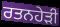
ਰਤਨਹੇੜੀ